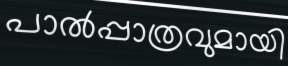
പാൽപ്പാത്രവുമായി